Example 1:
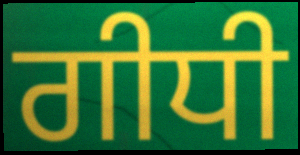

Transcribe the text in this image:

ਗੀਧੀ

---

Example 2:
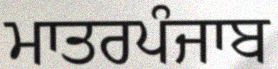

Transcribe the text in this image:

ਮਾਤਰਪੰਜਾਬ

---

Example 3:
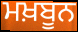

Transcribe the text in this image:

ਮਖ਼ਬੂਨ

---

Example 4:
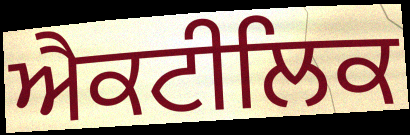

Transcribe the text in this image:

ਐਕਟੀਲਿਕ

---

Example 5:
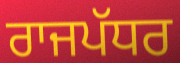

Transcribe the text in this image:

ਰਾਜਪੱਧਰ